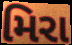
મિરા